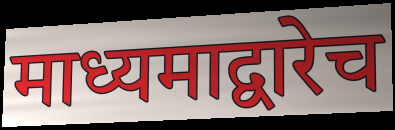
माध्यमाद्वारेच